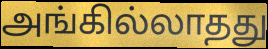
அங்கில்லாதது